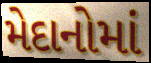
મેદાનોમાં